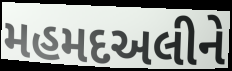
મહમદઅલીને